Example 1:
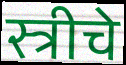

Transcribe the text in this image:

स्त्रीचे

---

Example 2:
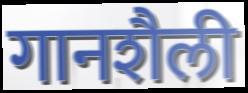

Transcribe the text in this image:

गानशैली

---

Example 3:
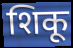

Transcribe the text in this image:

शिकू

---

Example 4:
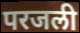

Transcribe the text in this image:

परजली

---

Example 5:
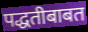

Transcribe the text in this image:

पद्धतीबाबत